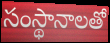
సంస్థానాలతో